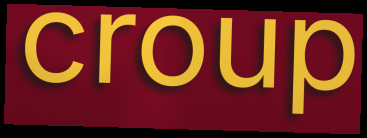
croup